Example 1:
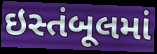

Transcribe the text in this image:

ઇસ્તંબૂલમાં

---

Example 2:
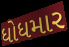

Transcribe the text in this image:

ધોધમાર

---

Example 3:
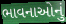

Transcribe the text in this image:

ભાવનાઓનું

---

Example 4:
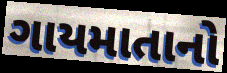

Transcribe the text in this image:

ગાયમાતાનો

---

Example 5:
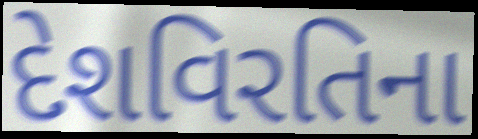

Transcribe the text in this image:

દેશવિરતિના